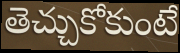
తెచ్చుకోకుంటే